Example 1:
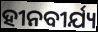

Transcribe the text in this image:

ହୀନବୀର୍ଯ୍ୟ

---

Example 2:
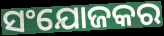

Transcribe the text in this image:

ସଂଯୋଜକର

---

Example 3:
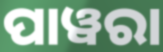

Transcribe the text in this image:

ପାୱରା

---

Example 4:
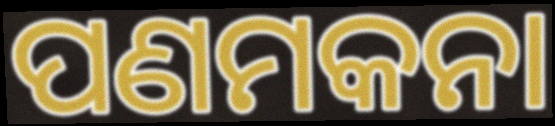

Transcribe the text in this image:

ପଣମକନା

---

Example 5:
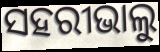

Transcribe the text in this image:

ସହରୀଭାଲୁ